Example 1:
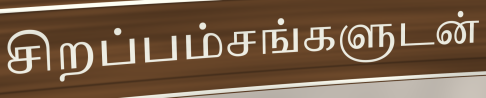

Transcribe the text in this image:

சிறப்பம்சங்களுடன்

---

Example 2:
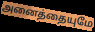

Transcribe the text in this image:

அனைத்தையுமே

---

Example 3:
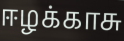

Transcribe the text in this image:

ஈழக்காசு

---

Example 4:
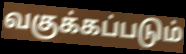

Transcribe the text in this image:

வகுக்கப்படும்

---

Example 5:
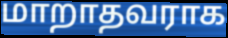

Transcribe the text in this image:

மாறாதவராக